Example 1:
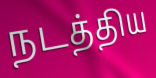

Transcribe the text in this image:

நடத்திய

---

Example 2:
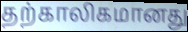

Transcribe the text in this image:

தற்காலிகமானது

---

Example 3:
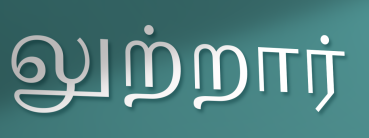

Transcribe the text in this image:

லுற்றார்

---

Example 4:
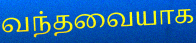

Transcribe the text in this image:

வந்தவையாக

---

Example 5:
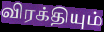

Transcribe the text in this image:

விரக்தியும்